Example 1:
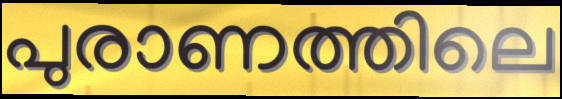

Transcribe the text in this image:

പുരാണത്തിലെ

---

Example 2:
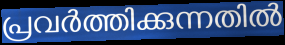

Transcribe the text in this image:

പ്രവർത്തിക്കുന്നതിൽ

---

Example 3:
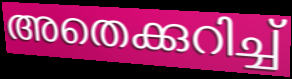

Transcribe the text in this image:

അതെക്കുറിച്ച്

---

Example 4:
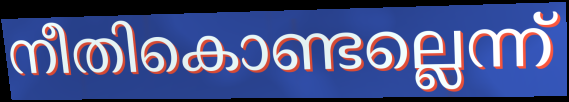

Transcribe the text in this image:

നീതികൊണ്ടല്ലെന്ന്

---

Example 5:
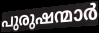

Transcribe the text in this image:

പുരുഷന്മാർ